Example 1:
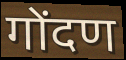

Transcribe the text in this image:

गोंदण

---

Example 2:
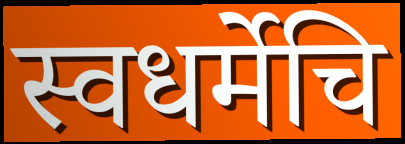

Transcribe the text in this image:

स्वधर्मेचि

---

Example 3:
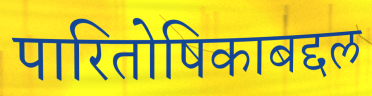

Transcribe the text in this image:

पारितोषिकाबद्दल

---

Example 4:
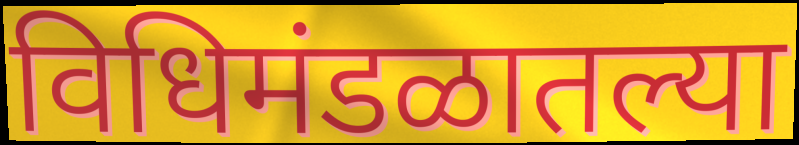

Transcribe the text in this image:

विधिमंडळातल्या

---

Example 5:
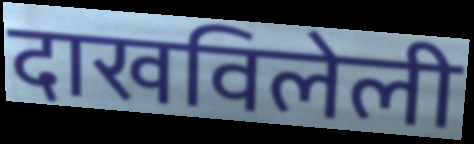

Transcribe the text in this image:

दाखविलेली